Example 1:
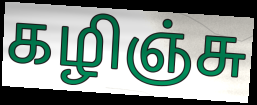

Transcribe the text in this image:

கழிஞ்சு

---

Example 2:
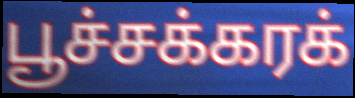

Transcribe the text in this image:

பூச்சக்கரக்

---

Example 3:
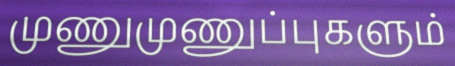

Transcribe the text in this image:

முணுமுணுப்புகளும்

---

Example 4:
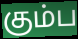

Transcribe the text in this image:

கும்ப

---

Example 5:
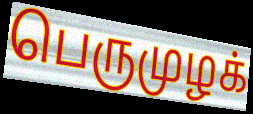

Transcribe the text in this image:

பெருமுழக்